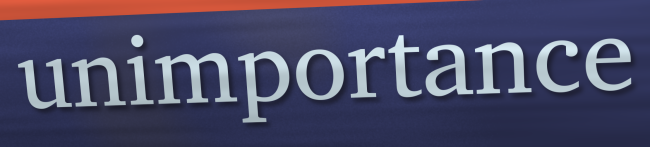
unimportance